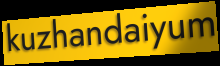
kuzhandaiyum